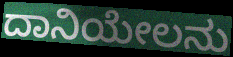
ದಾನಿಯೇಲನು